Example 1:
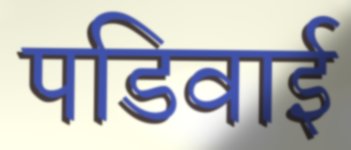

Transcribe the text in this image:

पडिवाई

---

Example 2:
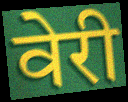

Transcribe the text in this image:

वेरी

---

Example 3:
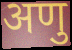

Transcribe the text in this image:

अणु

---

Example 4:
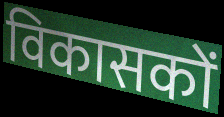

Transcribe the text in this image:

विकासकों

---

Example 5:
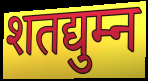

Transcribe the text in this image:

शतद्युम्न